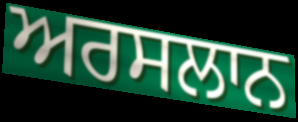
ਅਰਸਲਾਨ